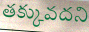
తక్కువదని